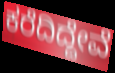
ಕರೆದಿದ್ದೇವೆ